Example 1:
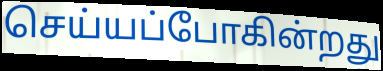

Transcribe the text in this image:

செய்யப்போகின்றது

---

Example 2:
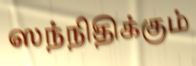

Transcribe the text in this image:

ஸந்நிதிக்கும்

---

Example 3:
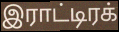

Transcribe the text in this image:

இராட்டிரக்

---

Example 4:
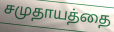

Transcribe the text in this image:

சமுதாயத்தை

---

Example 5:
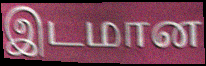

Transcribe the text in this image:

இடமான